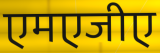
एमएजीए